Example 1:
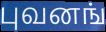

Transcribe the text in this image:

புவனங்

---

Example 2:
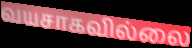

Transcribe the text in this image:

வயசாகவில்லை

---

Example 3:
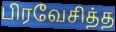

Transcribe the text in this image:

பிரவேசித்த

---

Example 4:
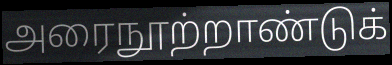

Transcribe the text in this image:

அரைநூற்றாண்டுக்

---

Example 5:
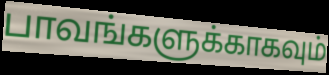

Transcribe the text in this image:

பாவங்களுக்காகவும்